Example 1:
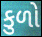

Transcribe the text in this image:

કુળો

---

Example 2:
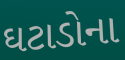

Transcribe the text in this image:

ઘટાડોના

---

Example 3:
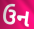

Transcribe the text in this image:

ઉન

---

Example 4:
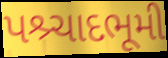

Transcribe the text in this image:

પશ્ર્ચાદભૂમી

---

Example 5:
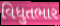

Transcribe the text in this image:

વિધુતભાર